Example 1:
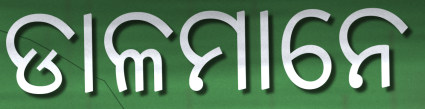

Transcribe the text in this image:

ଡାଳମାନେ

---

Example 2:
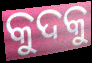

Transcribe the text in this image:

କୁଦକୁ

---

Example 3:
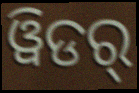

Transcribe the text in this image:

ୱିଡର୍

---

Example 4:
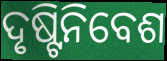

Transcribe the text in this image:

ଦୃଷ୍ଟିନିବେଶ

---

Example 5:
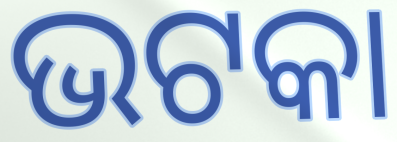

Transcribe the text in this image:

ଭଟକା